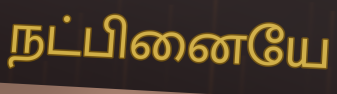
நட்பினையே